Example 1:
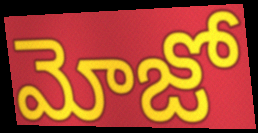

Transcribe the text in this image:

మోజో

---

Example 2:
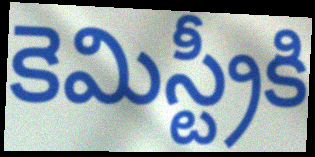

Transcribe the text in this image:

కెమిస్ట్రీకి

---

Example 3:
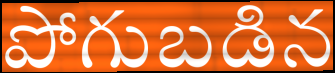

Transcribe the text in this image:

పోగుబడిన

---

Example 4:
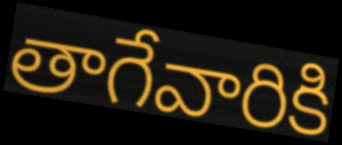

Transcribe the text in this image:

తాగేవారికి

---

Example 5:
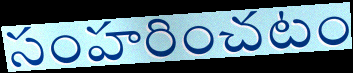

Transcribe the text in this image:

సంహరించటం